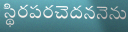
స్థిరపరచెదననెను